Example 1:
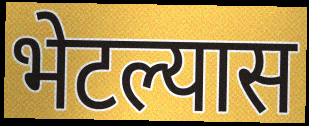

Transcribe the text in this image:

भेटल्यास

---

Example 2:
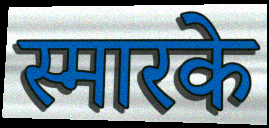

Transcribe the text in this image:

स्मारके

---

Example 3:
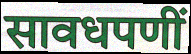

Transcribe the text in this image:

सावधपणीं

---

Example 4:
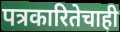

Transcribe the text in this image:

पत्रकारितेचाही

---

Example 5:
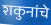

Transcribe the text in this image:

शकुनांचे